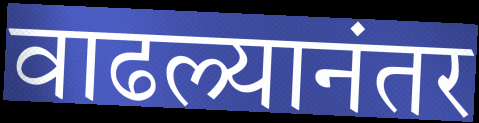
वाढल्यानंतर